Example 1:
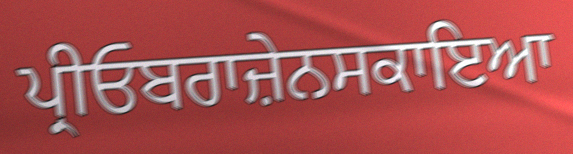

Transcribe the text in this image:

ਪ੍ਰੀਓਬਰਾਜ਼ੇਨਸਕਾਇਆ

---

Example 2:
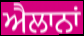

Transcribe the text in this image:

ਐਲਾਨਾਂ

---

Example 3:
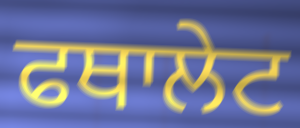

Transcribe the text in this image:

ਫਥਾਲੇਟ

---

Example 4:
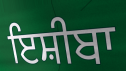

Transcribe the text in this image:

ਇਸ਼ੀਬਾ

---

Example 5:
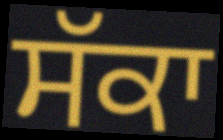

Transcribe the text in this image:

ਸੱਕਾ